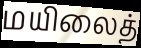
மயிலைத்